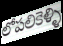
లోపలికెళ్ళి